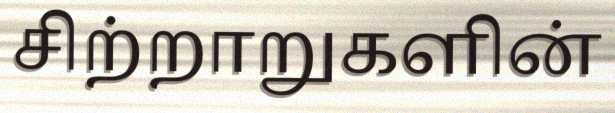
சிற்றாறுகளின்